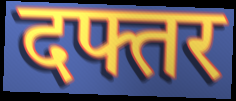
दफ्तर